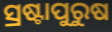
ସ୍ରଷ୍ଟାପୁରୁଷ